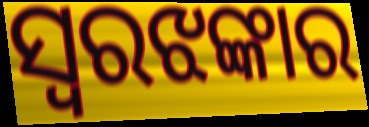
ସ୍ୱରଝଙ୍କାର